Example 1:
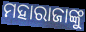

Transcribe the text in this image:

ମହାରାଜାଙ୍କୁ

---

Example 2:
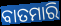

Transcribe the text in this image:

ବାତମାରି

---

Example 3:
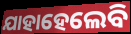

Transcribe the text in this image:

ଯାହାହେଲେବି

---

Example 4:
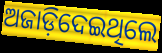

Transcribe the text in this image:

ଅଜାଡ଼ିଦେଇଥିଲେ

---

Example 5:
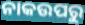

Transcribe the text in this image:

ନାକଉପରୁ